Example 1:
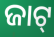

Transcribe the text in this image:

ଜାଟ୍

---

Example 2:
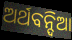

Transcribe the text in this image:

ଅର୍ଥବନ୍ଦିଆ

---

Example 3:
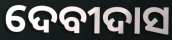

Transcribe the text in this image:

ଦେବୀଦାସ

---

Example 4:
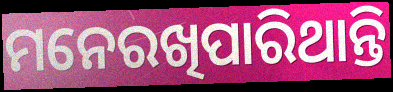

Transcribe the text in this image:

ମନେରଖିପାରିଥାନ୍ତି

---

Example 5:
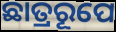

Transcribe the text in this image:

ଛାତ୍ରରୂପେ